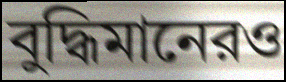
বুদ্ধিমানেরও